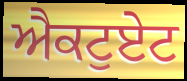
ਐਕਟੁਏਟ